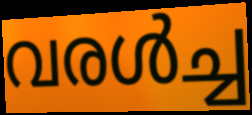
വരൾച്ച